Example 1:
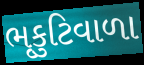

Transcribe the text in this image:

ભૃકુટિવાળા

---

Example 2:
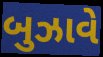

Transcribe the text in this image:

બુઝાવે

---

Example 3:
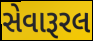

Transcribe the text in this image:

સેવારૂરલ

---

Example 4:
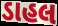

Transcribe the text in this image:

ડાહલ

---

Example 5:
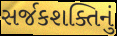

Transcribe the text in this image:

સર્જકશક્તિનું